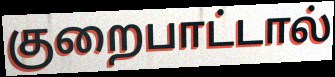
குறைபாட்டால்